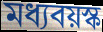
মধ্যবয়স্ক